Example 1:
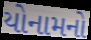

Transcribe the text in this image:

યોનામનો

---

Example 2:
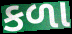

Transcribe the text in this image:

કળા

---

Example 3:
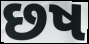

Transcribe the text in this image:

છષ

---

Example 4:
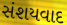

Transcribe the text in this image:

સંશયવાદ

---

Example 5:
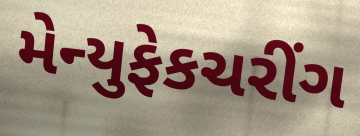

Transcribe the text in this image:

મેન્યુફેકચરીંગ